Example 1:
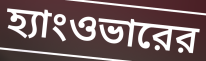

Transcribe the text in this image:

হ্যাংওভারের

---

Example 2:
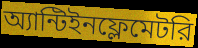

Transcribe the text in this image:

অ্যান্টিইনফ্লেমেটরি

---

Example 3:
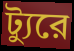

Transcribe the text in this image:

ট্যুরে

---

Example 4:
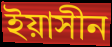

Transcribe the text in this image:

ইয়াসীন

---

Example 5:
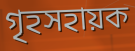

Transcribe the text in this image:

গৃহসহায়ক